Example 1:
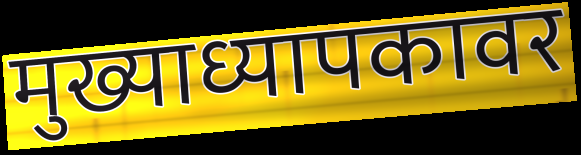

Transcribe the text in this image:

मुख्याध्यापकावर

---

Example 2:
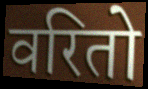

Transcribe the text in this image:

वरितो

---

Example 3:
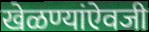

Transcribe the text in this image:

खेळण्यांऐवजी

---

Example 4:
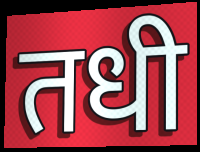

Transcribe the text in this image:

तधी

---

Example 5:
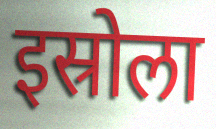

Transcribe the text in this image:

इस्रोला